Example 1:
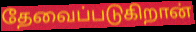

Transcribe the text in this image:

தேவைப்படுகிறான்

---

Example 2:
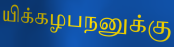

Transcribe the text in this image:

யிக்கழபநனுக்கு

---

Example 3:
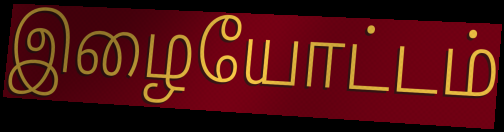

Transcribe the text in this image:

இழையோட்டம்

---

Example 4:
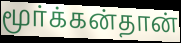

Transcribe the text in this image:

மூர்க்கன்தான்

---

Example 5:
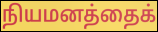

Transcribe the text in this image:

நியமனத்தைக்